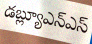
డబ్ల్యూఎన్ఎస్